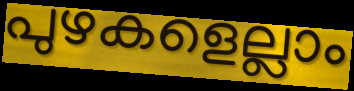
പുഴകളെല്ലാം